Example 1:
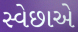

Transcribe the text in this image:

સ્વેછાએ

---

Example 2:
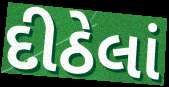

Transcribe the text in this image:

દીઠેલાં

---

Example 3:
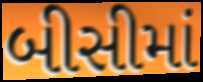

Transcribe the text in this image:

બીસીમાં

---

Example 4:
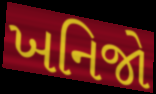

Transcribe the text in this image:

ખનિજો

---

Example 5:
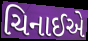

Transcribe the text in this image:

ચિનાઈએ